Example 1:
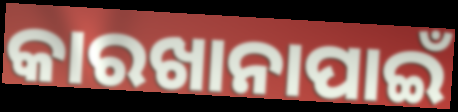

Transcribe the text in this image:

କାରଖାନାପାଇଁ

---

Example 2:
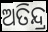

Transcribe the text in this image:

ଅତିନ୍ଦ୍ର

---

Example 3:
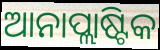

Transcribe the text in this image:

ଆନାପ୍ଲାଷ୍ଟିକ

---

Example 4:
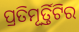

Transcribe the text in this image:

ପ୍ରତିମୂର୍ତ୍ତିଟିର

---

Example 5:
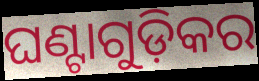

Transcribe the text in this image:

ଘଣ୍ଟାଗୁଡ଼ିକର